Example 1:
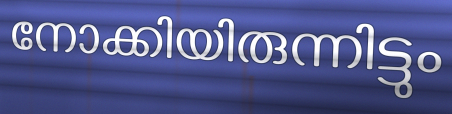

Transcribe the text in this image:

നോക്കിയിരുന്നിട്ടും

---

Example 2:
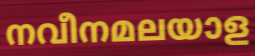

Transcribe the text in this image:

നവീനമലയാള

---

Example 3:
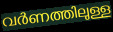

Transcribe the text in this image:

വർണത്തിലുള്ള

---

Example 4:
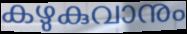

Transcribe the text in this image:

കഴുകുവാനും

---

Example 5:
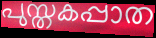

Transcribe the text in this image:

പുസ്തകപ്പാത